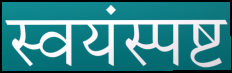
स्वयंस्पष्ट